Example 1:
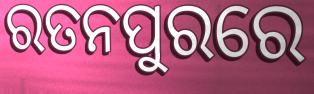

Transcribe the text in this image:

ରତନପୁରରେ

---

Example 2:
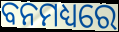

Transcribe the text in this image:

ବନମଧ୍ୟରେ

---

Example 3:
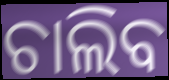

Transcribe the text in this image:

ଚାଲିବ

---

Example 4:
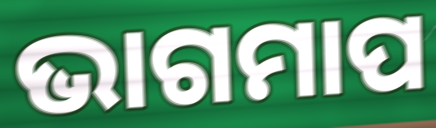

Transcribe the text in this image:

ଭାଗମାପ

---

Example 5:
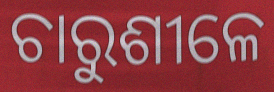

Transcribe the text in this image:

ଚାରୁଶୀଳେ